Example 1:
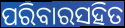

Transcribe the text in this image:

ପରିବାରସହିତ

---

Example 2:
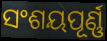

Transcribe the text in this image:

ସଂଶୟପୂର୍ଣ୍ଣ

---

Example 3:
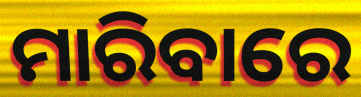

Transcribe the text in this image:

ମାରିବାରେ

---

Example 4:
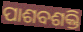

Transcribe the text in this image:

ପାଶବଶକ୍ତି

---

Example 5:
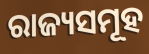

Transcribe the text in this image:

ରାଜ୍ୟସମୂହ